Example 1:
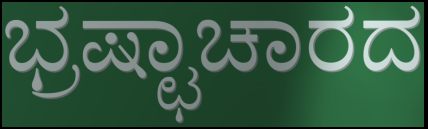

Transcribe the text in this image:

ಭ್ರಷ್ಟಾಚಾರದ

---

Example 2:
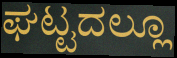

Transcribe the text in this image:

ಘಟ್ಟದಲ್ಲೂ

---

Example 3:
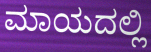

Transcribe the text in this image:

ಮಾಯದಲ್ಲಿ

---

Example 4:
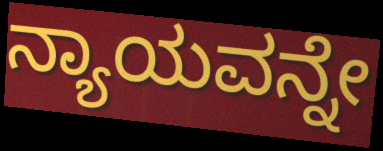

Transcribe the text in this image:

ನ್ಯಾಯವನ್ನೇ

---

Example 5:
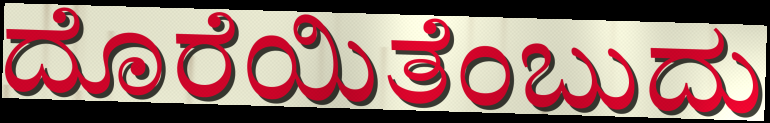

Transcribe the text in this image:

ದೊರೆಯಿತೆಂಬುದು